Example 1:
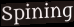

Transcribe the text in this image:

Spining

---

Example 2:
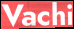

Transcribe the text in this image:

Vachi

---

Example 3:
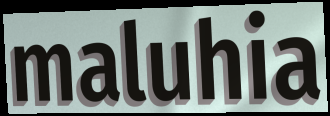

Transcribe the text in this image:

maluhia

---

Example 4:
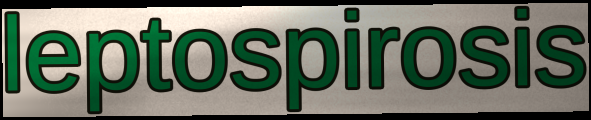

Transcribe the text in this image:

leptospirosis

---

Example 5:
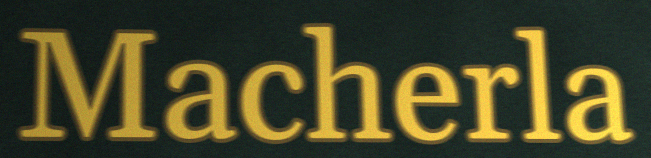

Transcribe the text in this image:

Macherla